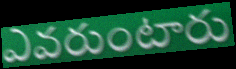
ఎవరుంటారు